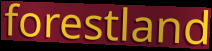
forestland